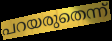
പറയരുതെന്ന്